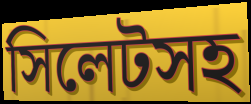
সিলেটসহ